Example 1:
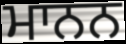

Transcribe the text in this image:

ਮਾਨਨ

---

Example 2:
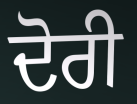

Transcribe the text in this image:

ਦੋਰੀ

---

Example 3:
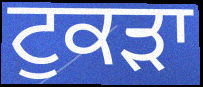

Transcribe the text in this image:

ਟੁਕਡ਼ਾ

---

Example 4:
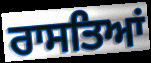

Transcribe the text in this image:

ਰਾਸਤਿਆਂ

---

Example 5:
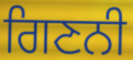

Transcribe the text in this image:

ਗਿਣਨੀ